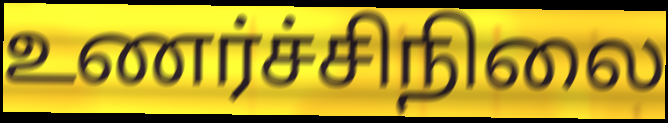
உணர்ச்சிநிலை